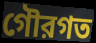
গৌরগত